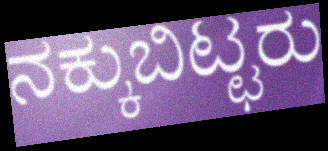
ನಕ್ಕುಬಿಟ್ಟರು